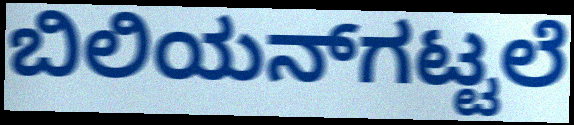
ಬಿಲಿಯನ್‌ಗಟ್ಟಲೆ